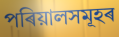
পৰিয়ালসমূহৰ